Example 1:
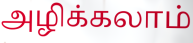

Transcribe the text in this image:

அழிக்கலாம்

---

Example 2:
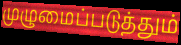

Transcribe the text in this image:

முழுமைப்படுத்தும்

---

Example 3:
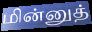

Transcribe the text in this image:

மின்னுத்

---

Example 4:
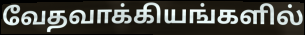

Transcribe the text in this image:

வேதவாக்கியங்களில்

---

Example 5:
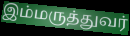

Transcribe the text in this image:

இம்மருத்துவர்